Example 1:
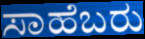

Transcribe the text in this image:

ಸಾಹೆಬರು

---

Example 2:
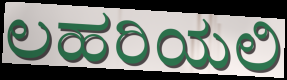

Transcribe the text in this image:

ಲಹರಿಯಲಿ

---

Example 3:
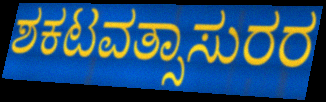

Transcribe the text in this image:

ಶಕಟವತ್ಸಾಸುರರ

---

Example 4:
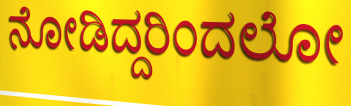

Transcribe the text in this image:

ನೋಡಿದ್ದರಿಂದಲೋ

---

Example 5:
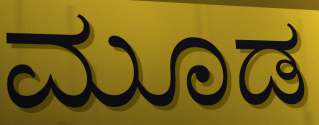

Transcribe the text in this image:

ಮೂಡ